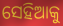
ସେହିଆକୁ